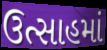
ઉત્સાહમાં